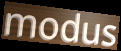
modus